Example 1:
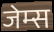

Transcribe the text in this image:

जेम्स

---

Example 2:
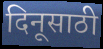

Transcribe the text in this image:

दिनूसाठी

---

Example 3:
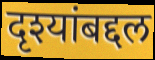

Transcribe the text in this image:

दृश्यांबद्दल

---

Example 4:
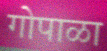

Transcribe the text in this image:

गोपाळा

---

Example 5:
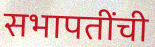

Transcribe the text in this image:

सभापतींची